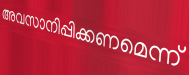
അവസാനിപ്പിക്കണമെന്ന്